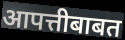
आपत्तीबाबत